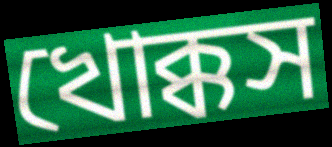
খোক্কস